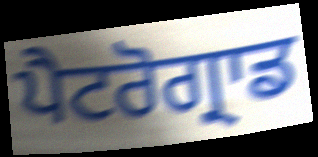
ਪੈਟਰੋਗ੍ਰਾਡ